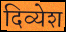
दिव्येश